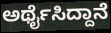
ಅರ್ಥೈಸಿದ್ದಾನೆ